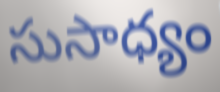
సుసాధ్యం